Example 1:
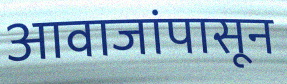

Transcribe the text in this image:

आवाजांपासून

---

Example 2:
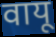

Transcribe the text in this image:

वायू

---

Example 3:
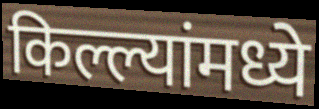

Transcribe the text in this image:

किल्ल्यांमध्ये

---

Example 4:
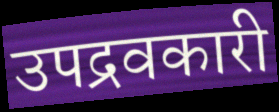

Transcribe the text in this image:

उपद्रवकारी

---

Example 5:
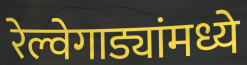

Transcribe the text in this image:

रेल्वेगाड्यांमध्ये